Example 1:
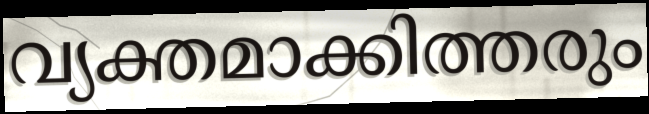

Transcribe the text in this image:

വ്യക്തമാക്കിത്തരും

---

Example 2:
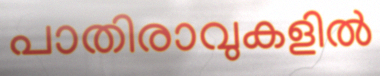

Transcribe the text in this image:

പാതിരാവുകളിൽ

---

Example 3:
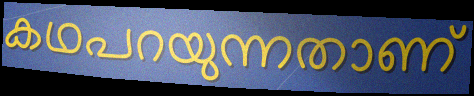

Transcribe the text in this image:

കഥപറയുന്നതാണ്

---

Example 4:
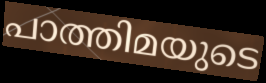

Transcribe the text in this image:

പാത്തിമയുടെ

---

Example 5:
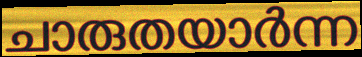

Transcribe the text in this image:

ചാരുതയാർന്ന